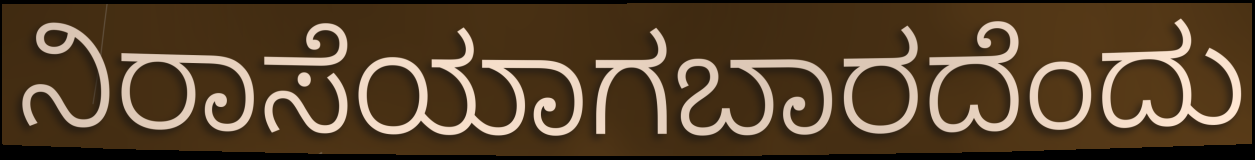
ನಿರಾಸೆಯಾಗಬಾರದೆಂದು